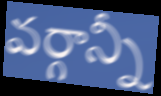
వర్గాన్నీ